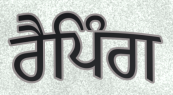
ਰੈਪਿੰਗ